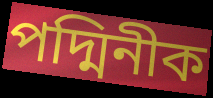
পদ্মিনীক